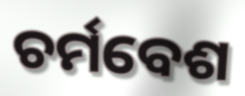
ଚର୍ମବେଶ